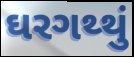
ઘરગથ્થું